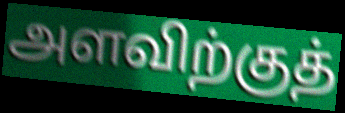
அளவிற்குத்